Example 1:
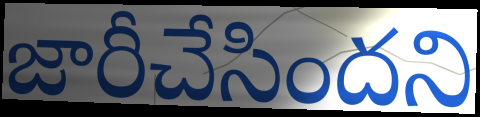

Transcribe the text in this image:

జారీచేసిందని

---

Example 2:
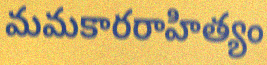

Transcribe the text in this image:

మమకారరాహిత్యం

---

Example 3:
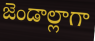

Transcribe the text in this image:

జెండాల్లాగా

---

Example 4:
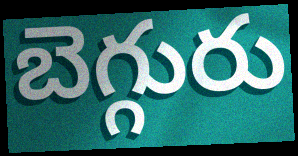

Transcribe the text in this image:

బెగ్గురు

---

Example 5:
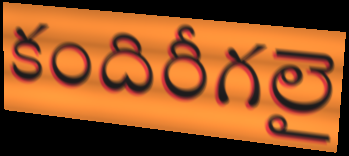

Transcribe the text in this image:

కందిరీగలై